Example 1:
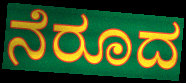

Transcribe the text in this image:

ನೆರೂದ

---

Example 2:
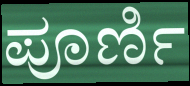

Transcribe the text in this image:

ಪೂರ್ಣಿ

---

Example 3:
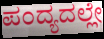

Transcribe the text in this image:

ಪಂದ್ಯದಲ್ಲೇ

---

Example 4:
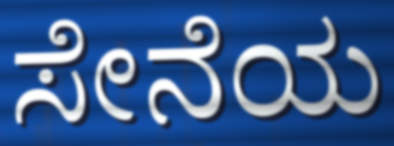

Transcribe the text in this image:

ಸೇನೆಯ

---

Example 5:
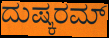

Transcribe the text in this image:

ದುಷ್ಕರಮ್